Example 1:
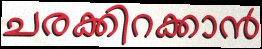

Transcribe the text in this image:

ചരക്കിറക്കാൻ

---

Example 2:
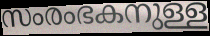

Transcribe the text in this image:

സംരംഭകനുള്ള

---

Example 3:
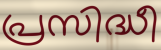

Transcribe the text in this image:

പ്രസിദ്ധീ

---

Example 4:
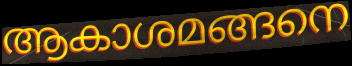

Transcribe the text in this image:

ആകാശമങ്ങനെ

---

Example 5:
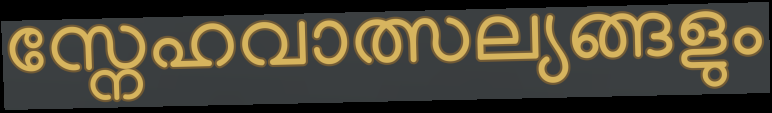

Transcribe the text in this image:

സ്നേഹവാത്സല്യങ്ങളും